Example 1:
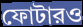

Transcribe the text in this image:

ফোটারও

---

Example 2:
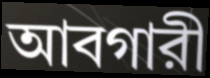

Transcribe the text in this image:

আবগারী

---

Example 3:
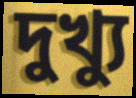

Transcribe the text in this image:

দুখ্যু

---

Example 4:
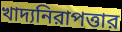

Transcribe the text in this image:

খাদ্যনিরাপত্তার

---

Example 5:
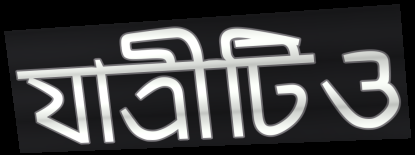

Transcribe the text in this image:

যাত্রীটিও